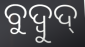
ବୁଦ୍ବୁଦ୍